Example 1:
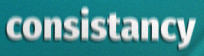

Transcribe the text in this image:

consistancy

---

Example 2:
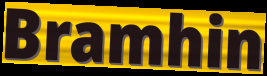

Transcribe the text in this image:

Bramhin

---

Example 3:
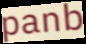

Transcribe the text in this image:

panb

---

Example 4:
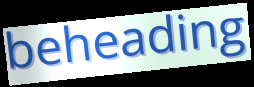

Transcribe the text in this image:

beheading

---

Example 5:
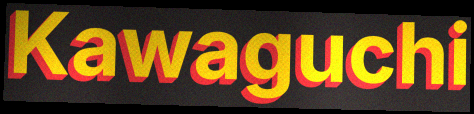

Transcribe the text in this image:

Kawaguchi